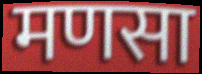
मणसा